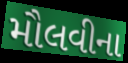
મૌલવીના